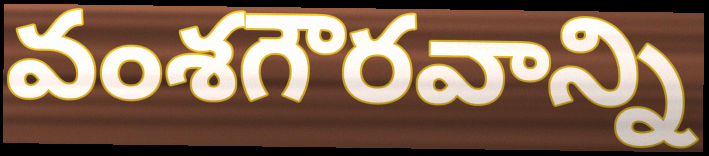
వంశగౌరవాన్ని